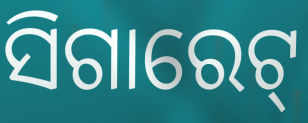
ସିଗାରେଟ୍